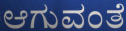
ಆಗುವಂತೆ